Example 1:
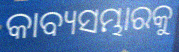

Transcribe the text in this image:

କାବ୍ୟସମ୍ଭାରକୁ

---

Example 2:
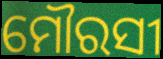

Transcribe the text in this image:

ମୌରସୀ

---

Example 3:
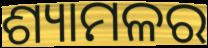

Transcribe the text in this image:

ଶ୍ୟାମଳର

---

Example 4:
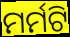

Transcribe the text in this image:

ମର୍ମଟି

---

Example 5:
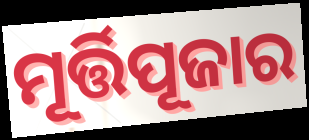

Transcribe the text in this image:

ମୂର୍ତ୍ତିପୂଜାର